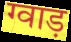
ग्वाड़